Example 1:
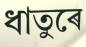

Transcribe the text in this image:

ধাতুৰে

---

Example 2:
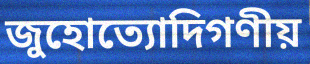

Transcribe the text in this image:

জুহোত্যোদিগণীয়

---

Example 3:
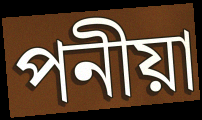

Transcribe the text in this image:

পনীয়া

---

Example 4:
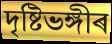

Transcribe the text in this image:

দৃষ্টিভঙ্গীৰ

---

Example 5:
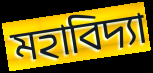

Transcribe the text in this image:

মহাবিদ্যা